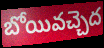
బోయివచ్చెద